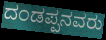
ದಂಡಪ್ಪನವರು